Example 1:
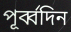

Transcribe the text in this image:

পূর্ব্বদিন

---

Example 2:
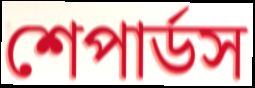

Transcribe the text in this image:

শেপার্ডস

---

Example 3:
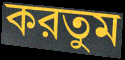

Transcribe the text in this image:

করতুম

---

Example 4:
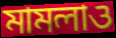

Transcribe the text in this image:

মামলাও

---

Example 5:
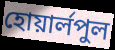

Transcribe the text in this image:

হোয়ার্লপুল